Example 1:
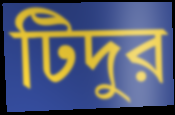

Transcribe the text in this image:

টিদুর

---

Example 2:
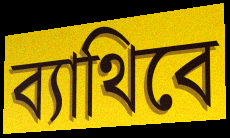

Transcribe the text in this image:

ব্যাথিবে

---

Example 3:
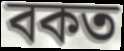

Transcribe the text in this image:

বকত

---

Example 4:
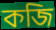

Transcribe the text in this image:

কজি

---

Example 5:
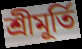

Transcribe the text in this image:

শ্রীমূর্তি